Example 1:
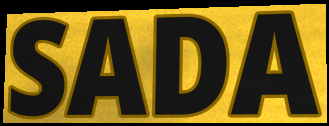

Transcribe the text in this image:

SADA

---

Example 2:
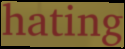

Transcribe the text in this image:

hating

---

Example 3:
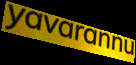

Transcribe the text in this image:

yavarannu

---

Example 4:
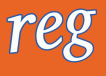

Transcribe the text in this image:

reg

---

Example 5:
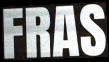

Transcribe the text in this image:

FRAS